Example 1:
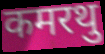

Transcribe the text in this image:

कमरथु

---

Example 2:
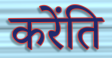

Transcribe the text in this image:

करेंति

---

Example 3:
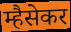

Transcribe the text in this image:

म्हैसेकर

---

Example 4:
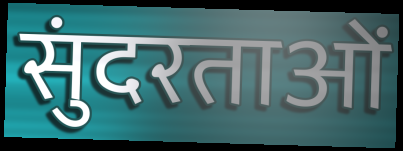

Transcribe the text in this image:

सुंदरताओं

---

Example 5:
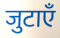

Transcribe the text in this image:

जुटाएँ